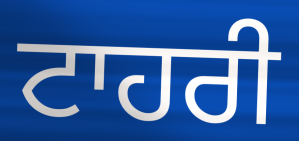
ਟਾਹਰੀ